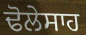
ਢੋਲੇਸਾਹ